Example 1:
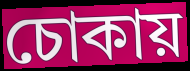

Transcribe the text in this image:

চোকায়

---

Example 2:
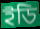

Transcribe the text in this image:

ইডি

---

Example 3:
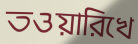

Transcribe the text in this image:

তওয়ারিখে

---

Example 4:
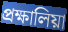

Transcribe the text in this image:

প্রক্ষালিয়া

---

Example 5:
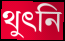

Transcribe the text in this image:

থুৎনি